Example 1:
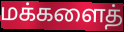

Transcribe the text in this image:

மக்களைத்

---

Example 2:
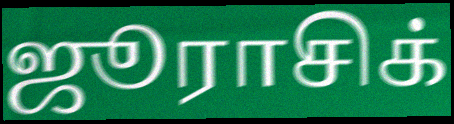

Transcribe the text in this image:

ஜூராசிக்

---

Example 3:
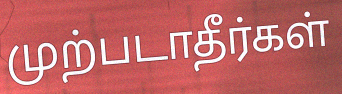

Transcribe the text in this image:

முற்படாதீர்கள்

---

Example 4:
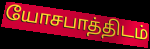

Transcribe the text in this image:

யோசபாத்திடம்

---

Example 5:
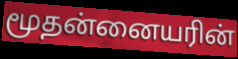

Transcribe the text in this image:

மூதன்னையரின்